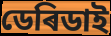
ডেৰিডাই